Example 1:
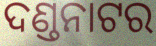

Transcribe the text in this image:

ଦଣ୍ଡନାଟର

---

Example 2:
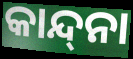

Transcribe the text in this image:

କାନ୍ଦ୍‌ନା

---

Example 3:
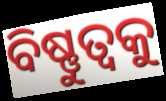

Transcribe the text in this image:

ବିଷ୍ଣୁତ୍ୱକୁ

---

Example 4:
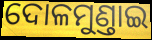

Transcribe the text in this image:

ଦୋଳମୁଣ୍ତାଇ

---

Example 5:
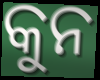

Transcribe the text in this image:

କୁନ